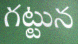
గట్టున